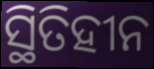
ସ୍ଥିତିହୀନ